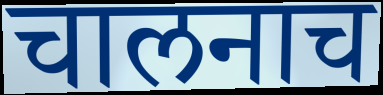
चालनाच